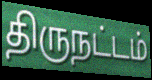
திருநட்டம்